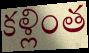
కళ్లింత